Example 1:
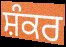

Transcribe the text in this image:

ਸ਼ੰਕਰ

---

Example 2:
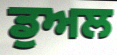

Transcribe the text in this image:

ਡੁਅਲ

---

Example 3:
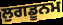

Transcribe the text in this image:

ਲੁਗਡੂਨਮ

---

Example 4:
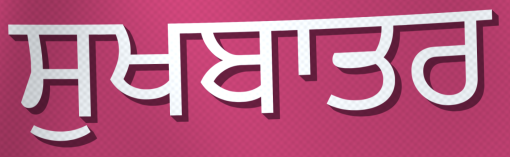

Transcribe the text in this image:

ਸੁਖਬਾਤਰ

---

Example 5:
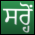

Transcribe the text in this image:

ਸਰ੍ਹੋਂ